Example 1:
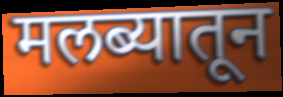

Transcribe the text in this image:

मलब्यातून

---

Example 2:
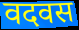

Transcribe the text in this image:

वदवस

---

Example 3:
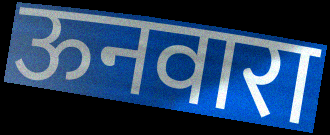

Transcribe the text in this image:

ऊनवारा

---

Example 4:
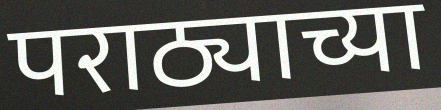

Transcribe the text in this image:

पराठ्याच्या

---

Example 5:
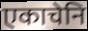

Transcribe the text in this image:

एकाचेनि